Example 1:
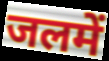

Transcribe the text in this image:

जलमें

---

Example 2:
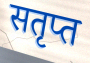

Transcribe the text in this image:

सतृप्त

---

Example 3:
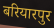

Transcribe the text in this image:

बरियारपुर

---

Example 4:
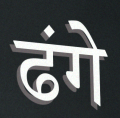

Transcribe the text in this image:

ढंगे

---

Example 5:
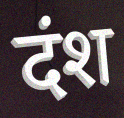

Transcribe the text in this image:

दंश